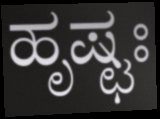
ಹೃಷ್ಟಃ